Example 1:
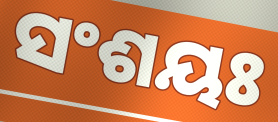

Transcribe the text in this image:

ସଂଶୟଃ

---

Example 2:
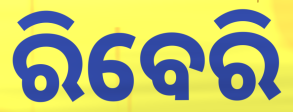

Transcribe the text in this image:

ରିବେରି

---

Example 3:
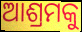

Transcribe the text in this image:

ଆଶ୍ରମକୁ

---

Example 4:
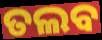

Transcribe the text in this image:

ତଲବ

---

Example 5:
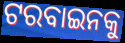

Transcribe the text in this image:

ଟରବାଇନକୁ